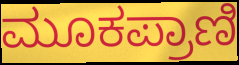
ಮೂಕಪ್ರಾಣಿ